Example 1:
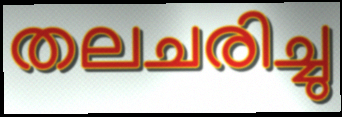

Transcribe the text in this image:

തലചരിച്ചു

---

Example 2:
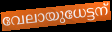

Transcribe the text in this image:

വേലായുധേട്ടന്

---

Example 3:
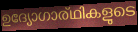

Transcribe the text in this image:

ഉദ്യോഗാര്ഥികളുടെ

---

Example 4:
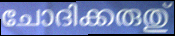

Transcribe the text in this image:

ചോദിക്കരുതു്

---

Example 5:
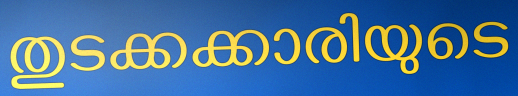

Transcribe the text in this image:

തുടക്കക്കാരിയുടെ